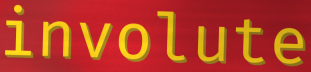
involute